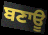
ਬਣਾਊ